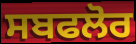
ਸਬਫਲੋਰ